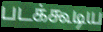
படக்கூடிய